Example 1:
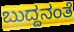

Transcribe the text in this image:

ಬುದ್ದನಂತೆ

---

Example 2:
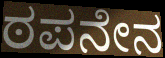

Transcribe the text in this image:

ಠಪನೇನ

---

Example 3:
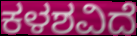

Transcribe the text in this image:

ಕಳಶವಿದೆ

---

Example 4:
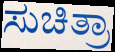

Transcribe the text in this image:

ಸುಚಿತ್ರಾ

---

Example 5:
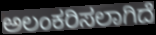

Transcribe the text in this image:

ಅಲಂಕರಿಸಲಾಗಿದೆ